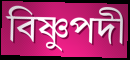
বিষ্ণুপদী